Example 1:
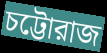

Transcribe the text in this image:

চট্টোরাজ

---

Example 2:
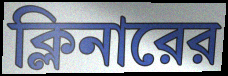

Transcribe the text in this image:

ক্লিনারের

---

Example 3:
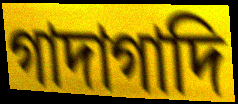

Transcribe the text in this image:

গাদাগাদি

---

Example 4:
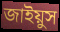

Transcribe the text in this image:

জাইয়ুস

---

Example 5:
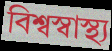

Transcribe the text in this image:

বিশ্বস্বাস্থ্য